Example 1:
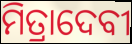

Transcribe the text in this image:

ମିତ୍ରାଦେବୀ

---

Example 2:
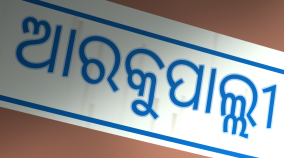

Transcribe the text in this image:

ଆରକୁପାଲ୍ଲୀ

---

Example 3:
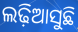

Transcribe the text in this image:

ଲଢ଼ିଆସୁଛି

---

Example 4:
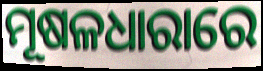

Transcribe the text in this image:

ମୂଷଳଧାରାରେ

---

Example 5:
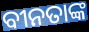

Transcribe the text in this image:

ବୀନତାଙ୍କ